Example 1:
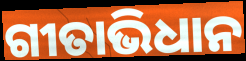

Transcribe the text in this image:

ଗୀତାଭିଧାନ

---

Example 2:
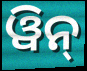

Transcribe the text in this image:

ୱିନ୍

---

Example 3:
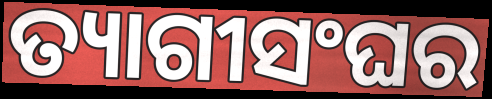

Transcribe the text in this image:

ତ୍ୟାଗୀସଂଘର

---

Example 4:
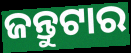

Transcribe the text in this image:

ଜନ୍ତୁଟାର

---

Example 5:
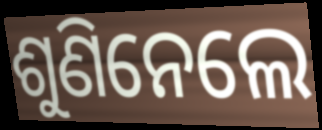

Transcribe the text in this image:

ଶୁଣିନେଲେ